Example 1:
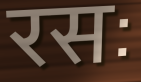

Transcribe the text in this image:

रसः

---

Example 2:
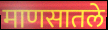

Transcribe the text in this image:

माणसातले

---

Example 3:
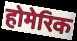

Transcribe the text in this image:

होमेरिक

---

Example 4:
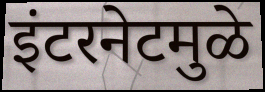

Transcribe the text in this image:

इंटरनेटमुळे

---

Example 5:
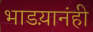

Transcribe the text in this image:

भाडय़ानंही